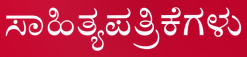
ಸಾಹಿತ್ಯಪತ್ರಿಕೆಗಳು